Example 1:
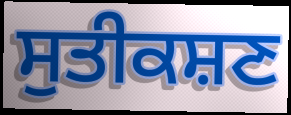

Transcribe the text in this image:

ਸੁਤੀਕਸ਼ਣ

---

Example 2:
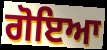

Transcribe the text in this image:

ਗੋਇਆ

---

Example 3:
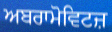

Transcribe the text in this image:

ਅਬਰਾਮੋਵਿਟਜ਼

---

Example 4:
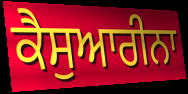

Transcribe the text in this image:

ਕੈਸੁਆਰੀਨਾ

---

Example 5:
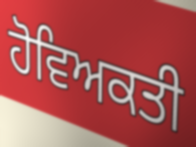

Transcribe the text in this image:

ਹੋਵਿਅਕਤੀ